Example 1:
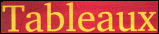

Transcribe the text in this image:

Tableaux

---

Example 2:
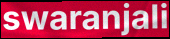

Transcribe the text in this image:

swaranjali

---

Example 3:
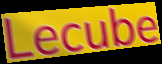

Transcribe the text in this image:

Lecube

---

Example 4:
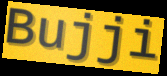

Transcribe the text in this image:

Bujji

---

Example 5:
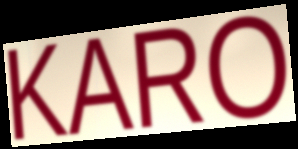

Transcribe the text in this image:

KARO